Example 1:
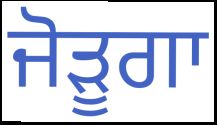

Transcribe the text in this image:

ਜੋੜੂਗਾ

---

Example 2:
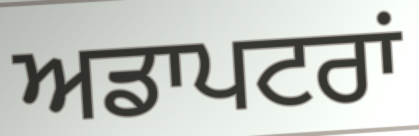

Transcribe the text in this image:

ਅਡਾਪਟਰਾਂ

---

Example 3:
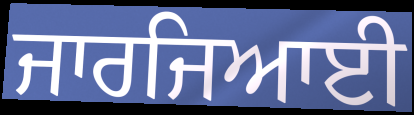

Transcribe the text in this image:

ਜਾਰਜਿਆਈ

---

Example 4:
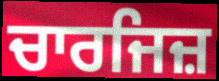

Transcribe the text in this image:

ਚਾਰਜਿਜ਼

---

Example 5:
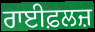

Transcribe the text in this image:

ਰਾਈਫ਼ਲਜ਼